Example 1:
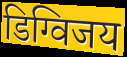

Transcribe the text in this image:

डिग्विजय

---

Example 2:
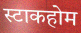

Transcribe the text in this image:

स्टाकहोम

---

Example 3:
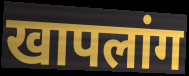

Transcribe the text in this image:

खापलांग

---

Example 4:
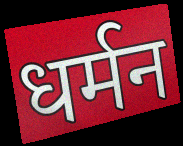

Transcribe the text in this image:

धर्मन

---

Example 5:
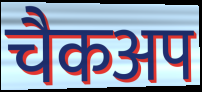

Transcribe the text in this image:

चैकअप